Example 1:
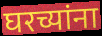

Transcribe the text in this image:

घरच्यांना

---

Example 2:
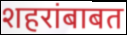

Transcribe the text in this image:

शहरांबाबत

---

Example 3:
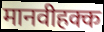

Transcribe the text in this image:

मानवीहक्क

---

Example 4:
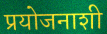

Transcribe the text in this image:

प्रयोजनाशी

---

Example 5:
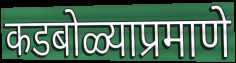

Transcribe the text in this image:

कडबोळ्याप्रमाणे